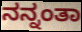
ನನ್ನಂತಾ